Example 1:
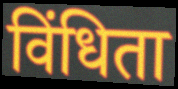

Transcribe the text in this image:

विंधिता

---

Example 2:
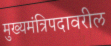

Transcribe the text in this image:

मुख्यमंत्रिपदावरील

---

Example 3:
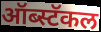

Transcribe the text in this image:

ऑब्स्टॅकल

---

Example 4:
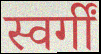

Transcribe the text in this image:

स्वर्गीं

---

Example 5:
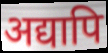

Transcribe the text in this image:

अद्यापि